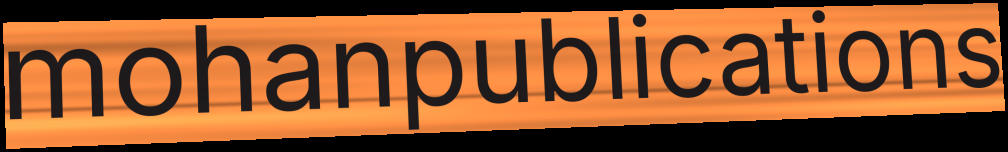
mohanpublications